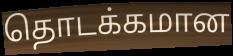
தொடக்கமான